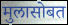
मुलासोबत